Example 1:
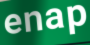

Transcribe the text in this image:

enap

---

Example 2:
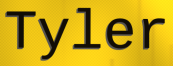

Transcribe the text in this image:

Tyler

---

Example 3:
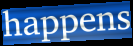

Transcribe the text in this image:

happens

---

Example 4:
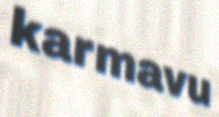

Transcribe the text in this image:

karmavu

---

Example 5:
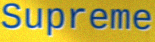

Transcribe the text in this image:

Supreme